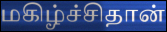
மகிழ்ச்சிதான்